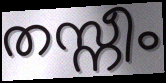
തസ്നീം